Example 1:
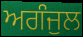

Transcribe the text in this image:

ਅਗੰਜੁਲ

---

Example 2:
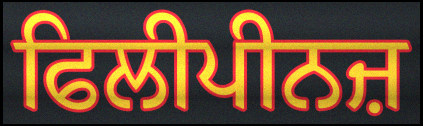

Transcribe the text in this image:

ਫਿਲੀਪੀਨਜ਼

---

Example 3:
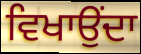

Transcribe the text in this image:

ਵਿਖਾਉਂਦਾ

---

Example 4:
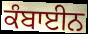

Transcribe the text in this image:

ਕੰਬਾਈਨ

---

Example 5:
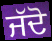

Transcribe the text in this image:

ਜੱਦੋ